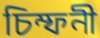
চিম্ফনী